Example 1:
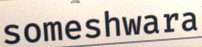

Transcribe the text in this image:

someshwara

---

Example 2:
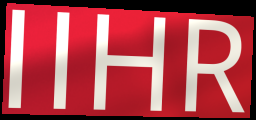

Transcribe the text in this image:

IIHR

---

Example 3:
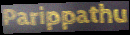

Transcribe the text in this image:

Parippathu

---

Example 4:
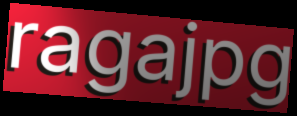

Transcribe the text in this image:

ragajpg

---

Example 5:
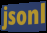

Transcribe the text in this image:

jsonl